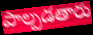
పాల్పడతారు